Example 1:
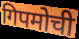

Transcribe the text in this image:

गिपमोची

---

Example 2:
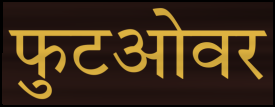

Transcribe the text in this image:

फुटओवर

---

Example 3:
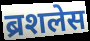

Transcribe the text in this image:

ब्रशलेस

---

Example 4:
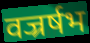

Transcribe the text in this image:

वज्रर्षभ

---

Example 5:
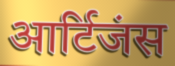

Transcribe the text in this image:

आर्टिजंस